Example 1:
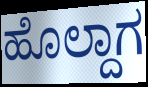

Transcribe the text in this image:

ಹೊಲ್ದಾಗ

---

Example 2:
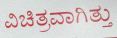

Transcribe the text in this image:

ವಿಚಿತ್ರವಾಗಿತ್ತು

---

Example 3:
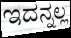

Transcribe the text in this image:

ಇದನ್ನಲ್ಲ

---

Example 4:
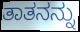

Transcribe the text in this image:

ತಾತನನ್ನು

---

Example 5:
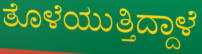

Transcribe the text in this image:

ತೊಳೆಯುತ್ತಿದ್ದಾಳೆ